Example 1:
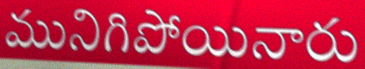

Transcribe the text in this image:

మునిగిపోయినారు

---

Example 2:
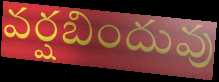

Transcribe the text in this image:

వర్షబిందువు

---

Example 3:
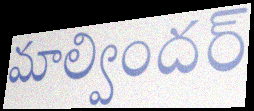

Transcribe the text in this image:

మాల్విందర్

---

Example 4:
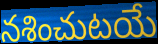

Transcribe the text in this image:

నశించుటయే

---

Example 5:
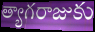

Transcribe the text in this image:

త్యాగరాజుకు